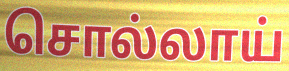
சொல்லாய்